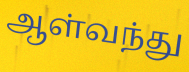
ஆள்வந்து